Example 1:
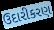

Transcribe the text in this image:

ઉદારીકરણ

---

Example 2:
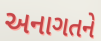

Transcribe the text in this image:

અનાગતને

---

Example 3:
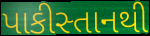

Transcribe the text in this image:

પાકીસ્તાનથી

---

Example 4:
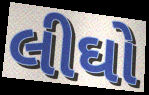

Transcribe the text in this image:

લીઘો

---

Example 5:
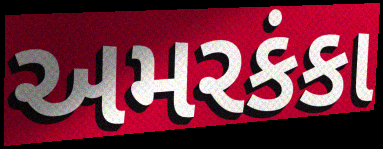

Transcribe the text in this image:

અમરકંકા